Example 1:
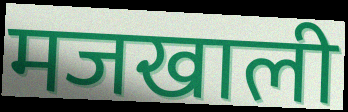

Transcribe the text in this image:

मजखाली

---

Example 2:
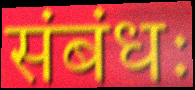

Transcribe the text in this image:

संबंधः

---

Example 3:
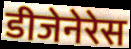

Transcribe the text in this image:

डीजेनेरेस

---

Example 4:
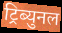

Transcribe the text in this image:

ट्रिब्युनल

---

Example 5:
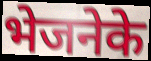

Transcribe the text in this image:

भेजनेके